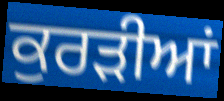
ਕੁਰੜੀਆਂ